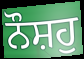
ਨੌਸ਼ਹੁ